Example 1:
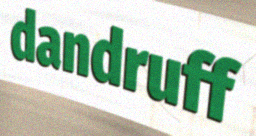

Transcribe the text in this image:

dandruff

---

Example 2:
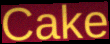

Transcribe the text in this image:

Cake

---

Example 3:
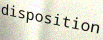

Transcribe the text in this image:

disposition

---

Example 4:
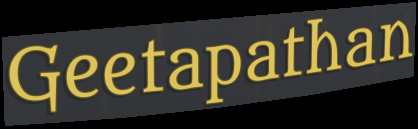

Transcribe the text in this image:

Geetapathan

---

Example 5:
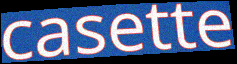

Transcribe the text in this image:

casette